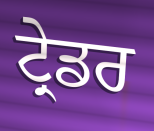
ਟ੍ਰੇਡਰ